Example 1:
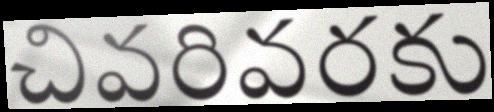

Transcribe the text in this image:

చివరివరకు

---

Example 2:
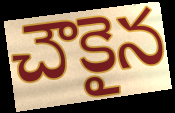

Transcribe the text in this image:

చౌకైన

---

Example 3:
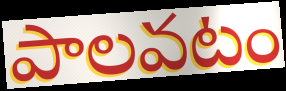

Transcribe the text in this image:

పాలవటం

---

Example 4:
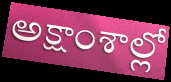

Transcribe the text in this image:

అక్షాంశాల్లో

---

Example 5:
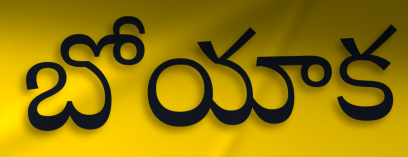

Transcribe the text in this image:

బోయాక